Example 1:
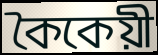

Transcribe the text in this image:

কৈকেয়ী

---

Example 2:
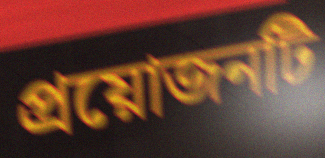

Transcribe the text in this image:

প্রয়োজনটি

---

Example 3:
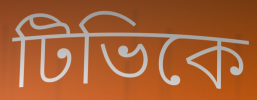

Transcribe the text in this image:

টিভিকে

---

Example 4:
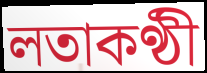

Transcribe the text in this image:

লতাকণ্ঠী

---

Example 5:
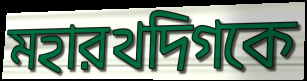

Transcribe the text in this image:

মহারথদিগকে